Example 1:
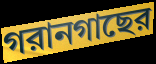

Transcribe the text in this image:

গরানগাছের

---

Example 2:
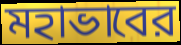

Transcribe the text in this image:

মহাভাবের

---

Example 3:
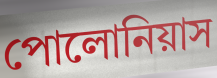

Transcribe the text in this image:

পোলোনিয়াস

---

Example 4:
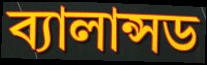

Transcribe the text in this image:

ব্যালান্সড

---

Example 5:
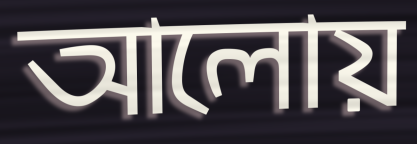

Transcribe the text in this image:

আলোয়